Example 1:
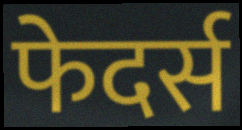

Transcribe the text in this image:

फेदर्स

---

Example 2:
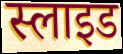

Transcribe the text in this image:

स्लाइड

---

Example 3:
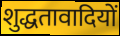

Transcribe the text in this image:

शुद्धतावादियों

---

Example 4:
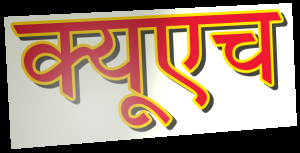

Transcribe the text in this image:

क्यूएच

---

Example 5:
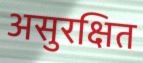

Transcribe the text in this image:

असुरक्षित